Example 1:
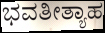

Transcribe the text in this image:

ಭವತೀತ್ಯಾಹ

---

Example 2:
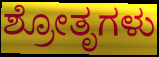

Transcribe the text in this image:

ಶ್ರೋತೃಗಳು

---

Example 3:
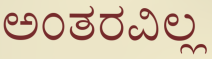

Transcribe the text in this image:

ಅಂತರವಿಲ್ಲ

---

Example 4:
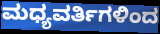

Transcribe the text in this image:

ಮಧ್ಯವರ್ತಿಗಳಿಂದ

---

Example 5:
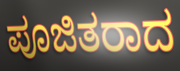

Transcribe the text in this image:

ಪೂಜಿತರಾದ